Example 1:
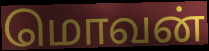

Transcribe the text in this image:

மொவன்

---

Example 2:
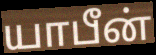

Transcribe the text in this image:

யாபீன்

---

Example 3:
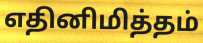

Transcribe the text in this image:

எதினிமித்தம்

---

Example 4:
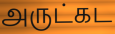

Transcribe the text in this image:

அருட்கட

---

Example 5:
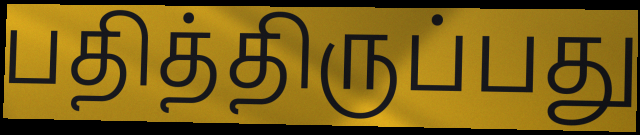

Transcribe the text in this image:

பதித்திருப்பது